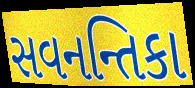
સવનન્તિકા